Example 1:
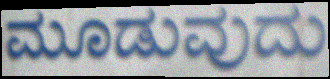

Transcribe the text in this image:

ಮೂಡುವುದು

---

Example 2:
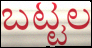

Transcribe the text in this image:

ಬಟ್ಟಲ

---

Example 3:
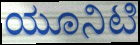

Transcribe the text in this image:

ಯೂನಿಟಿ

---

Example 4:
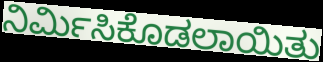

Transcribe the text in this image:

ನಿರ್ಮಿಸಿಕೊಡಲಾಯಿತು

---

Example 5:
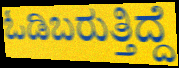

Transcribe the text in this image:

ಓಡಿಬರುತ್ತಿದ್ದೆ